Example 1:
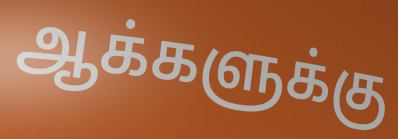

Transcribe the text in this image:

ஆக்களுக்கு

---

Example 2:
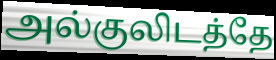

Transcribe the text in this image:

அல்குலிடத்தே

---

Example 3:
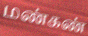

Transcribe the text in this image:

மண்கண்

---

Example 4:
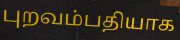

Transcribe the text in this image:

புறவம்பதியாக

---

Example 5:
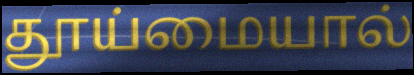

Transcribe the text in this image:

தூய்மையால்